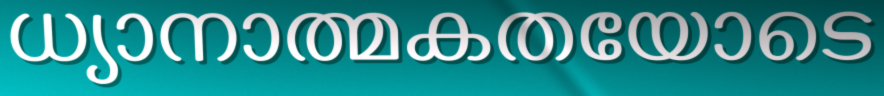
ധ്യാനാത്മകതയോടെ